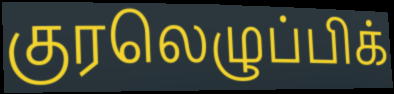
குரலெழுப்பிக்